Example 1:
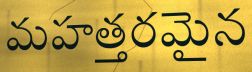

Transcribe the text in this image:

మహత్తరమైన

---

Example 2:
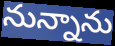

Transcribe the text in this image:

నున్నాను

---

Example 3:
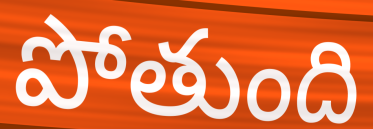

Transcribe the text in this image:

పోతుంది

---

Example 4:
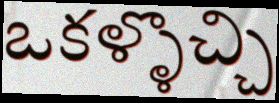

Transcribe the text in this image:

ఒకళ్ళొచ్చి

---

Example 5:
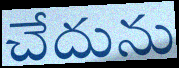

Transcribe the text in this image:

చేదును